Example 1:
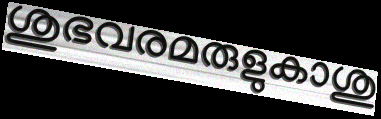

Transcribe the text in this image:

ശുഭവരമരുളുകാശു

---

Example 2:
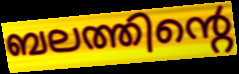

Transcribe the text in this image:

ബലത്തിന്റെ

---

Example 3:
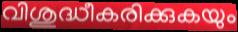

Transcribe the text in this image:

വിശുദ്ധീകരിക്കുകയും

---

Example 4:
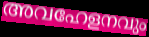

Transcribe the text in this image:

അവഹേളനവും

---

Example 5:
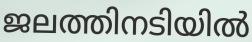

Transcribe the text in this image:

ജലത്തിനടിയിൽ